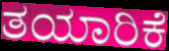
ತಯಾರಿಕೆ